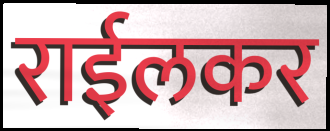
राईलकर